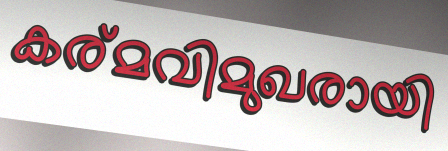
കര്മവിമുഖരായി